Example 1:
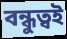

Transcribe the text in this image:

বন্ধুত্বই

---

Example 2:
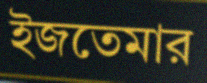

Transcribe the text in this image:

ইজতেমার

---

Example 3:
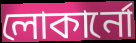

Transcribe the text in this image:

লোকার্নো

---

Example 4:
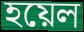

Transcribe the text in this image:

হয়েল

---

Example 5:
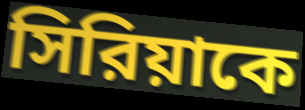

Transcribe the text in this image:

সিরিয়াকে